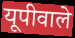
यूपीवाले